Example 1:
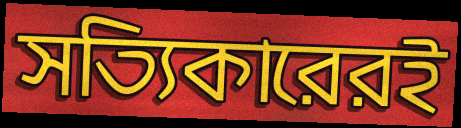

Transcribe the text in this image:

সত্যিকারেরই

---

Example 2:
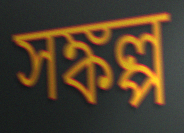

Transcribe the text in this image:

সঙ্কল্প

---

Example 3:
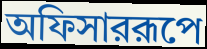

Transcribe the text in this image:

অফিসাররূপে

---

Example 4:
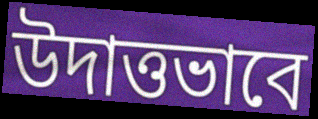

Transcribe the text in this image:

উদাত্তভাবে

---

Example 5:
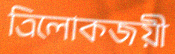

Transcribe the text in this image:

ত্রিলোকজয়ী